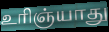
உரிஞ்யாது